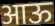
आऊ